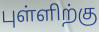
புள்ளிற்கு